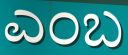
ಎಂಬ